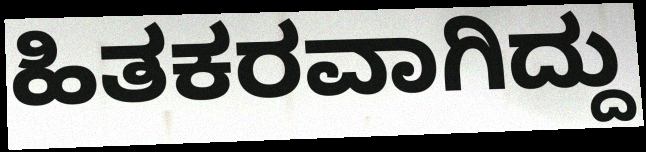
ಹಿತಕರವಾಗಿದ್ದು